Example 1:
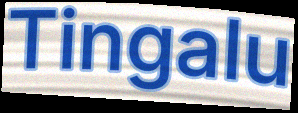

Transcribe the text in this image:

Tingalu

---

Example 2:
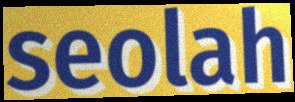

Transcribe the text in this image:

seolah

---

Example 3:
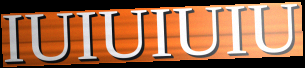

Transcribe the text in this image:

IUIUIUIU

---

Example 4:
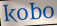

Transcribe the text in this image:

kobo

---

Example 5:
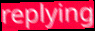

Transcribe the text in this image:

replying